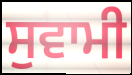
ਸੁਵਾਮੀ